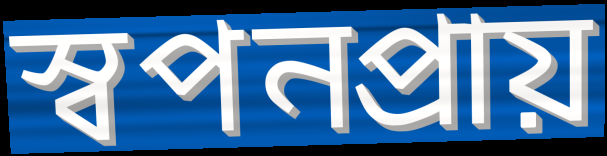
স্বপনপ্রায়